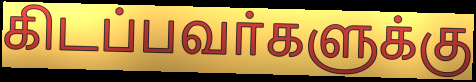
கிடப்பவர்களுக்கு